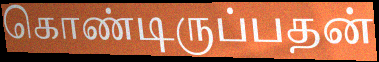
கொண்டிருப்பதன்